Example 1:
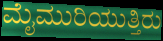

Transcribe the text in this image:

ಮೈಮುರಿಯುತ್ತಿರು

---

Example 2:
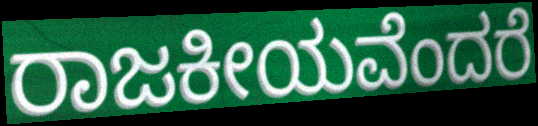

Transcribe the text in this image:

ರಾಜಕೀಯವೆಂದರೆ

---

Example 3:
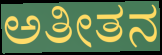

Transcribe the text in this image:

ಅತೀತನ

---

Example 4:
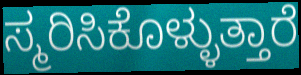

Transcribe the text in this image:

ಸ್ಮರಿಸಿಕೊಳ್ಳುತ್ತಾರೆ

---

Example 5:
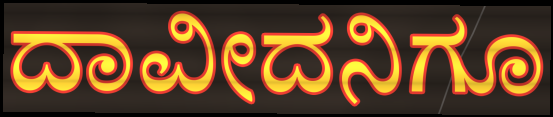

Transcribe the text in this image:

ದಾವೀದನಿಗೂ